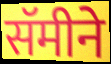
सॅमीने